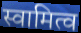
स्वामित्व